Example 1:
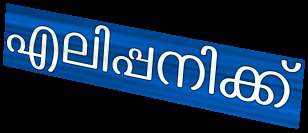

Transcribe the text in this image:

എലിപ്പനിക്ക്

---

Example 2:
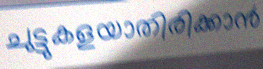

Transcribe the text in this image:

ചുട്ടുകളയാതിരിക്കാൻ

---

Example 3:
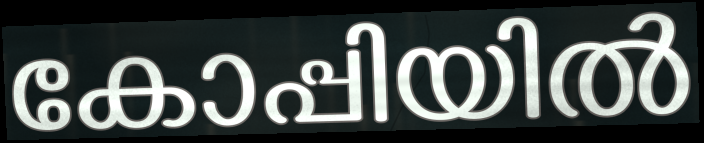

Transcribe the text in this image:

കോപ്പിയിൽ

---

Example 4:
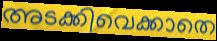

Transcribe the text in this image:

അടക്കിവെക്കാതെ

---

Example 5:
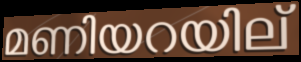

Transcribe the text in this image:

മണിയറയില്